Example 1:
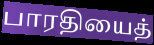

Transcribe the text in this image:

பாரதியைத்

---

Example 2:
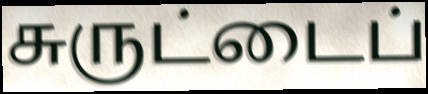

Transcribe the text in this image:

சுருட்டைப்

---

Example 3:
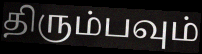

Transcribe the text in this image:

திரும்பவும்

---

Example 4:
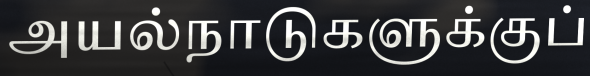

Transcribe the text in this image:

அயல்நாடுகளுக்குப்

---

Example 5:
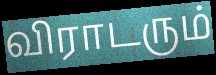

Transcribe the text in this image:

விராடரும்